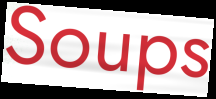
Soups